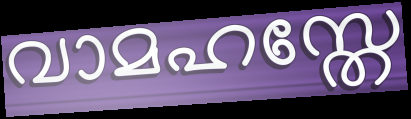
വാമഹസ്തേ